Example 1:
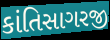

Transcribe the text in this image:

કાંતિસાગરજી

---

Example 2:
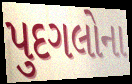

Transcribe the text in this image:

પુદગલોના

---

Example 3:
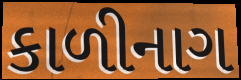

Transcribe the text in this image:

કાળીનાગ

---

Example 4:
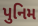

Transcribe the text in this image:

પુનિમ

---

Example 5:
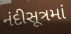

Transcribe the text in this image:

નંદીસૂત્રમાં